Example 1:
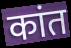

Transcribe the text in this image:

कांत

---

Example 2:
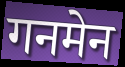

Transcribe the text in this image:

गनमेन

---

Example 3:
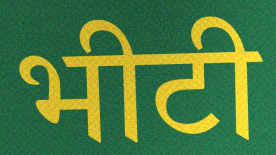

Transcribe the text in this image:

भीटी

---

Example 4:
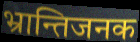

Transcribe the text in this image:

भ्रान्तिजनक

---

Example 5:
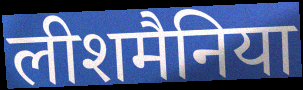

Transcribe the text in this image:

लीशमैनिया